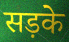
सड़के